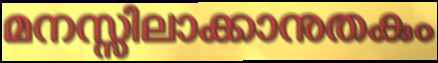
മനസ്സിലാക്കാനുതകും